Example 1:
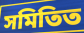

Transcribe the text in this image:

সমিতিত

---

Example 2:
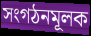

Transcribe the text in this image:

সংগঠনমূলক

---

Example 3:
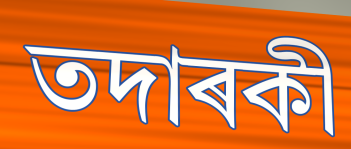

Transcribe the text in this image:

তদাৰকী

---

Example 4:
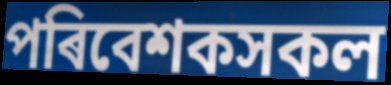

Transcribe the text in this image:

পৰিবেশকসকল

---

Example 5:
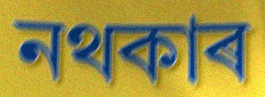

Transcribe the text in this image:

নথকাৰ